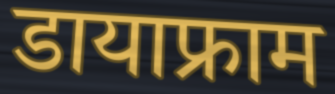
डायाफ्राम